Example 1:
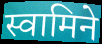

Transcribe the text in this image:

स्वामिने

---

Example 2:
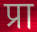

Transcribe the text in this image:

प्रा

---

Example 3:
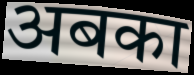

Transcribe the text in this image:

अबका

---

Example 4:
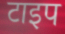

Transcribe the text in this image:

टाइप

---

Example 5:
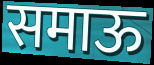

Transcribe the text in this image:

समाऊ